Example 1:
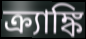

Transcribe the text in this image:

ক্র্যাঙ্কি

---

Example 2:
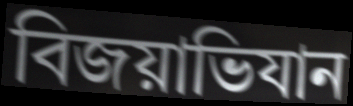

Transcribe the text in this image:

বিজয়াভিযান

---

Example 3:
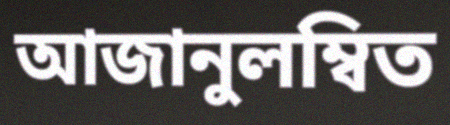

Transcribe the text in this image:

আজানুলম্বিত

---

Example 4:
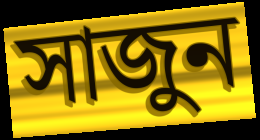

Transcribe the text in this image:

সাজুন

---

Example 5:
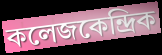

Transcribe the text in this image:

কলেজকেন্দ্রিক